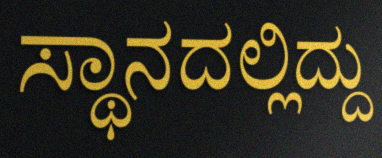
ಸ್ಥಾನದಲ್ಲಿದ್ದು